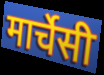
मार्चेसी